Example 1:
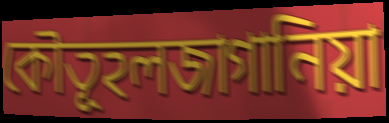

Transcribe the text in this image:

কৌতূহলজাগানিয়া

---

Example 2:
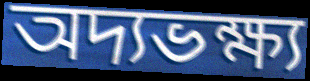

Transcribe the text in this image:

অদ্যভক্ষ্য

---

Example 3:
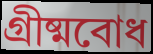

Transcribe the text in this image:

গ্রীষ্মবোধ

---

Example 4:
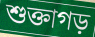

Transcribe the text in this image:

শুক্তাগড়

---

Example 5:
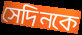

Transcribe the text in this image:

সেদিনকে